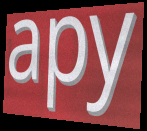
apy